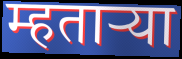
म्हताऱ्या